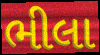
ભીલા